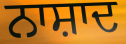
ਨਾਸ਼ਾਦ